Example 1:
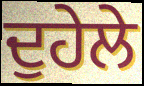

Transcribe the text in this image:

ਦੁਹੇਲੇ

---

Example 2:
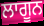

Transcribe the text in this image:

ਲਾਗੂਨ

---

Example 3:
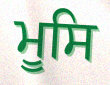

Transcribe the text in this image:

ਮੂਸਿ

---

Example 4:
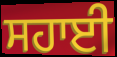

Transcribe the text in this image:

ਸਹਾਈ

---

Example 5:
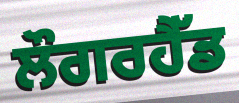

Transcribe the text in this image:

ਲੌਗਰਹੈੱਡ